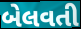
બેલવતી